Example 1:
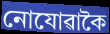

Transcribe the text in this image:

নোযোৱাকৈ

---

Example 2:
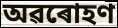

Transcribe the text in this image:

অৱৰোহণ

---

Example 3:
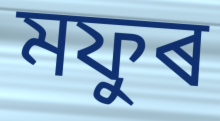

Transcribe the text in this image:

মফুৰ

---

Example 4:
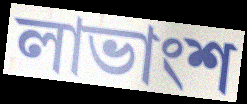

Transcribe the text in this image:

লাভাংশ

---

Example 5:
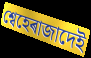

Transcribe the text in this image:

শ্বেহেৰাজাদেই